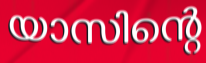
യാസിന്റെ